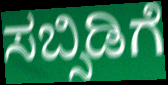
ಸಬ್ಸಿಡಿಗೆ